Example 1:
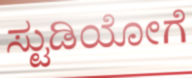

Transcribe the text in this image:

ಸ್ಟುಡಿಯೋಗೆ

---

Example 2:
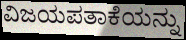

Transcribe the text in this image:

ವಿಜಯಪತಾಕೆಯನ್ನು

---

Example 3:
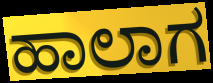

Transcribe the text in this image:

ಹಾಲಾಗ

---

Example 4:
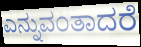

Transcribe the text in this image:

ಎನ್ನುವಂತಾದರೆ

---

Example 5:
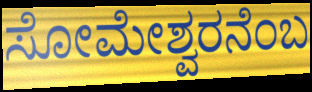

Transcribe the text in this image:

ಸೋಮೇಶ್ವರನೆಂಬ